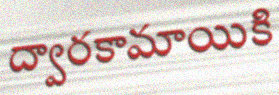
ద్వారకామాయికి